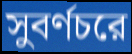
সুবর্ণচরে